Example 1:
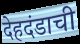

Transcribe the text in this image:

देहदंडाची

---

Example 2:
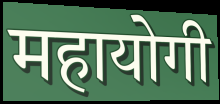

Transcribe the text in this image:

महायोगी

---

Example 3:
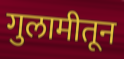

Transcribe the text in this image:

गुलामीतून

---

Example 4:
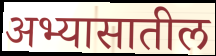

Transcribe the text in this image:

अभ्यासातील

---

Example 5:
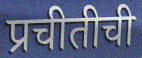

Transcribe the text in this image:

प्रचीतीची